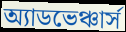
অ্যাডভেঞ্চার্স